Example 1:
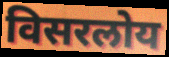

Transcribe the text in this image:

विसरलोय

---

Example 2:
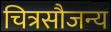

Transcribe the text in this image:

चित्रसौजन्य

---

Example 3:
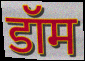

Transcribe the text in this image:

डॉम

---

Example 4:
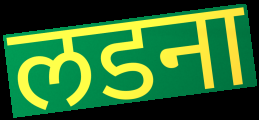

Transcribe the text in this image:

लडना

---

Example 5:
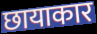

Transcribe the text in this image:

छायाकार